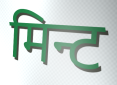
मिन्ट